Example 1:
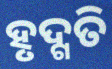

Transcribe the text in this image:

ହୃଦ୍ଗତି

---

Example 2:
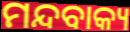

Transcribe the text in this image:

ମନ୍ଦବାକ୍ୟ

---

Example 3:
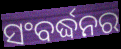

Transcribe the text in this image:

ସଂବର୍ଦ୍ଧନର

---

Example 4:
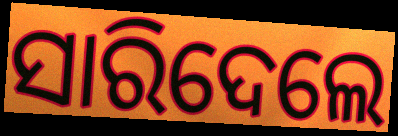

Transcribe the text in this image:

ସାରିଦେଲେ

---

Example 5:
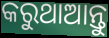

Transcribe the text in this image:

କରୁଥାଆନ୍ତୁ